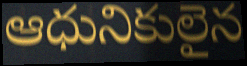
ఆధునికులైన